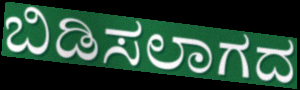
ಬಿಡಿಸಲಾಗದ